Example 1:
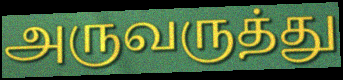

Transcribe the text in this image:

அருவருத்து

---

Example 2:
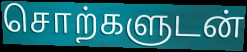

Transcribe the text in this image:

சொற்களுடன்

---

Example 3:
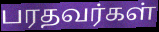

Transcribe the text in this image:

பரதவர்கள்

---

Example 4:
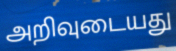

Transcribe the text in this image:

அறிவுடையது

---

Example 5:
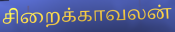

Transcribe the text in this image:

சிறைக்காவலன்